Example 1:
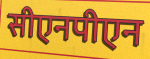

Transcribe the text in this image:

सीएनपीएन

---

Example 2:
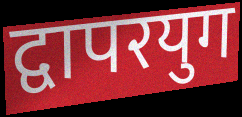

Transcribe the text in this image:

द्वापरयुग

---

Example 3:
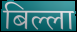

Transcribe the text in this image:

बिल्ला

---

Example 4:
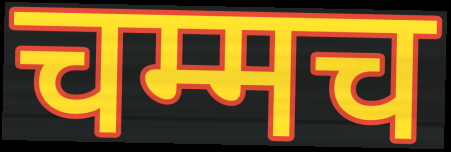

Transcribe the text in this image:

चम्मच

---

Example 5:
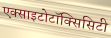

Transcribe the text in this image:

एक्साइटोटॉक्सिसिटी